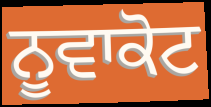
ਨੂਵਾਕੋਟ